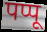
पप्पू